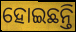
ହୋଇଛନ୍ତି